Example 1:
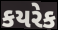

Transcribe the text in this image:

કયરેક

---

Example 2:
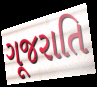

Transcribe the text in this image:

ગૂજરાતિ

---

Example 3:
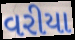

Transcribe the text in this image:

વરીયા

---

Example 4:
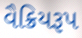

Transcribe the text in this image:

વૈક્રિયરૂપ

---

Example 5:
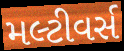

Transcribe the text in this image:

મલ્ટીવર્સ